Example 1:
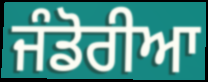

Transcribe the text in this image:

ਜੰਡੋਰੀਆ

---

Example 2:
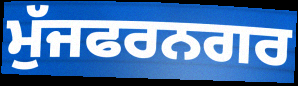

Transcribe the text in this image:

ਮੁੱਜਫਰਨਗਰ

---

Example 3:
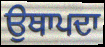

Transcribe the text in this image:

ਉਥਾਪਦਾ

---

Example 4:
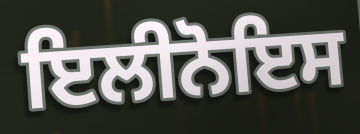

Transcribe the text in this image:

ਇਲੀਨੋਇਸ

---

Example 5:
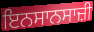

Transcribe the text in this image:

ਇਨਸਾਨਸਾਜ਼ੀ